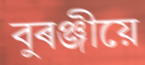
বুৰঞ্জীয়ে